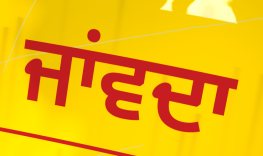
ਜਾਂਵਦਾ